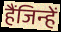
हैंजिन्हें